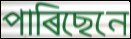
পাৰিছেনে